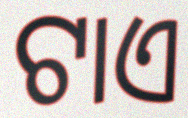
ଟାଏ